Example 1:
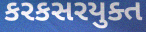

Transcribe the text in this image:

કરકસરયુક્ત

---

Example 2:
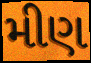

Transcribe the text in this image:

મીણ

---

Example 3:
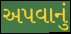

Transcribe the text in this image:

અપવાનું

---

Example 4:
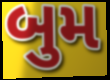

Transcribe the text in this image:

બુમ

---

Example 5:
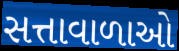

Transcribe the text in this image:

સત્તાવાળાઓ